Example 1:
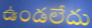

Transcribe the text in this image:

ఉండలేదు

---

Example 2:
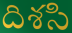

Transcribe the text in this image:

దిశసి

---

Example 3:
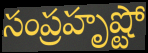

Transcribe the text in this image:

సంప్రహృష్టో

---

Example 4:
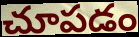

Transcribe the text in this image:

చూపడం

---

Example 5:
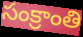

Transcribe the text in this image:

సంక్రాంతి